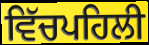
ਵਿੱਚਪਹਿਲੀ